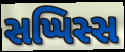
સપ્પિસ્સ